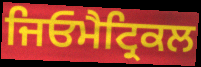
ਜਿਓਮੈਟ੍ਰਿਕਲ